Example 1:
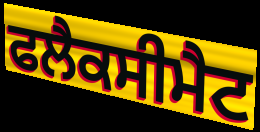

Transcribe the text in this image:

ਫਲੈਕਸੀਮੈਟ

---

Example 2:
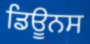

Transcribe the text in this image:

ਡਿਊਨਸ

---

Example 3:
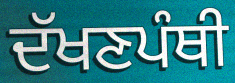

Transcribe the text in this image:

ਦੱਖਣਪੰਥੀ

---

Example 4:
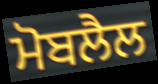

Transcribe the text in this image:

ਮੋਬਲੈਲ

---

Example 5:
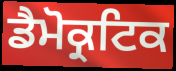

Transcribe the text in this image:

ਡੈਮੋਕ੍ਰਟਿਕ